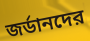
জর্ডানদের